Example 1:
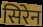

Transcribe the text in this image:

सिरेन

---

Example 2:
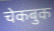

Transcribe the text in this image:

चेकबुक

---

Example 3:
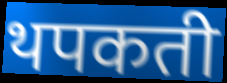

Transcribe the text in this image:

थपकती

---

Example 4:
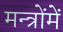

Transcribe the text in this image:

मन्त्रोंमें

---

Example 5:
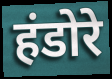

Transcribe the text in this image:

हंडोरे